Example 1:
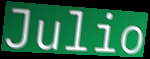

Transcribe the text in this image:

Julio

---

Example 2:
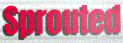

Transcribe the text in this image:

Sprouted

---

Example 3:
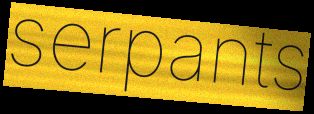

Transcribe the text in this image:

serpants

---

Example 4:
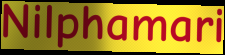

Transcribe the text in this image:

Nilphamari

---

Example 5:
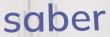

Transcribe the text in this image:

saber